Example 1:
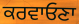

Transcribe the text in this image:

ਕਰਵਾਓਣਾ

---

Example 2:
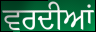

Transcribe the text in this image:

ਵਰਦੀਆਂ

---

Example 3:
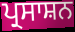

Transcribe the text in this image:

ਪ੍ਰਸਾਸ਼ਨ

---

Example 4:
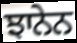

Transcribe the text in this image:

ਝਾਨੇਨ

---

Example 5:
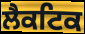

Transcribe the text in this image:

ਲੈਕਟਿਕ